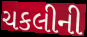
ચકલીની